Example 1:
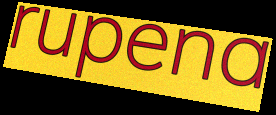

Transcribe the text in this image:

rupena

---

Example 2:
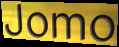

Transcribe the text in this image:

Jomo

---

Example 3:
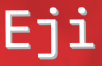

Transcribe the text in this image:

Eji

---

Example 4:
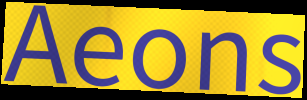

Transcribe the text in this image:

Aeons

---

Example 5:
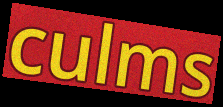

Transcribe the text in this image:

culms